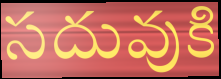
సదువుకి